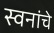
स्वनांचे